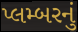
પ્લમ્બરનું